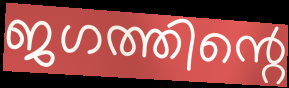
ജഗത്തിന്റെ